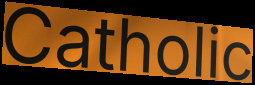
Catholic